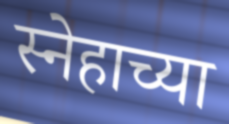
स्नेहाच्या